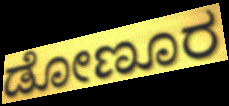
ಡೋಣೂರ